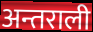
अन्तराली